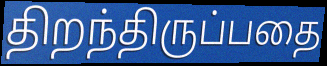
திறந்திருப்பதை